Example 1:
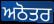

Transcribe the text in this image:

ਅਠੋਤਰ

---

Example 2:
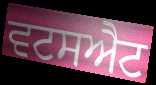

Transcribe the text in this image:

ਵਟਸਐਟ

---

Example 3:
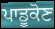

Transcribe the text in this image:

ਪਾਡੂਕੋਣ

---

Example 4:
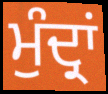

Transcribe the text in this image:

ਮੁੰਦ੍ਰਾਂ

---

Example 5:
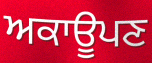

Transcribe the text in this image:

ਅਕਾਊਪਣ